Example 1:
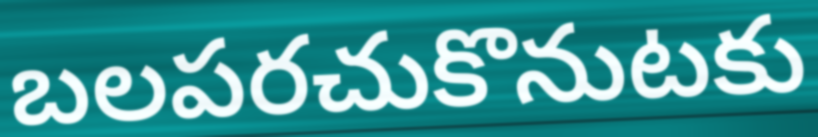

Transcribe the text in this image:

బలపరచుకొనుటకు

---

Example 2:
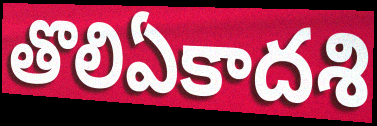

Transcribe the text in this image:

తొలిఏకాదశి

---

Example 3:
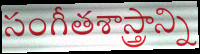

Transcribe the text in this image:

సంగీతశాస్త్రాన్ని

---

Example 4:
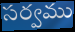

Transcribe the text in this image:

సర్వము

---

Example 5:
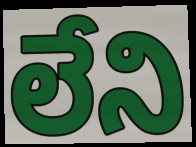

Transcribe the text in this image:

లేని